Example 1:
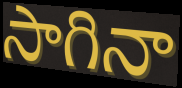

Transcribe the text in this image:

సాగినా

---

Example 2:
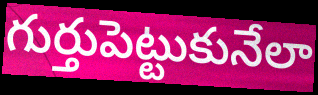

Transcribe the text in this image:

గుర్తుపెట్టుకునేలా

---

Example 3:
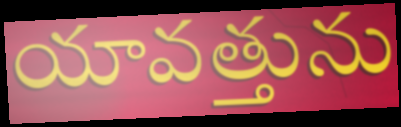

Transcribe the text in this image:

యావత్తును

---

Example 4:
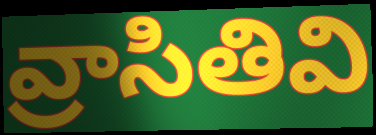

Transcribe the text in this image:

వ్రాసితివి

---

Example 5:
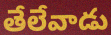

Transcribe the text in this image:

తేలేవాడు